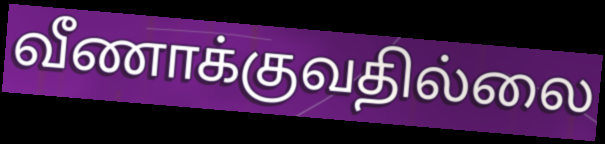
வீணாக்குவதில்லை